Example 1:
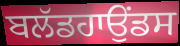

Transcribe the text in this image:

ਬਲੱਡਹਾਉਂਡਸ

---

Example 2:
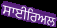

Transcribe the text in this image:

ਸਾਈਰਿਅਲ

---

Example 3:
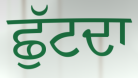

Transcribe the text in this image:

ਛੁੱਟਦਾ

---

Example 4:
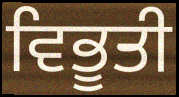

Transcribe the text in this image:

ਵਿਭੂਤੀ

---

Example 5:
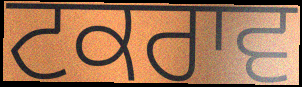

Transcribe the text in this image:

ਟਕਰਾਵ